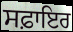
ਸਫ਼ਾਇਰ